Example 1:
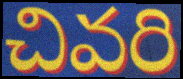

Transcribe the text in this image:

చివరి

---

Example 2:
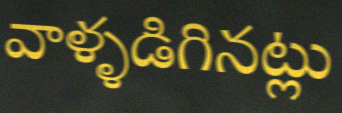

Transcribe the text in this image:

వాళ్ళడిగినట్లు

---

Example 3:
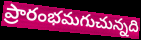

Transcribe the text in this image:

ప్రారంభమగుచున్నది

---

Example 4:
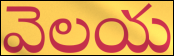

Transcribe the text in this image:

వెలయ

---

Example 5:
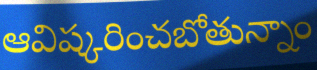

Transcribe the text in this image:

ఆవిష్కరించబోతున్నాం